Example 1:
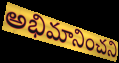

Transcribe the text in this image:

అభిమానించని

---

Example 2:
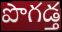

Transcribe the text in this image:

పొగడ్త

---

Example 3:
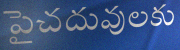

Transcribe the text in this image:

పైచదువులకు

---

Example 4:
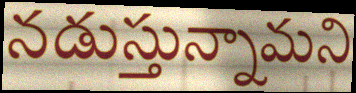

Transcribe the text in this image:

నడుస్తున్నామని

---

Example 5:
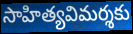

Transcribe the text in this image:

సాహిత్యవిమర్శకు